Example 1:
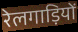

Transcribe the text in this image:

रेलगाड़ियों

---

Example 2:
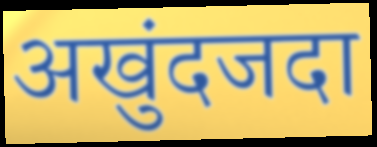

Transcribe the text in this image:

अखुंदजदा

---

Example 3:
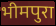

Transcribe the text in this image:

भीमपुरा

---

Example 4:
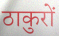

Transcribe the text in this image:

ठाकुरों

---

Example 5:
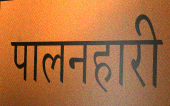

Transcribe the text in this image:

पालनहारी